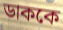
ডাককে